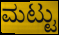
ಮಟ್ಟು